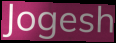
Jogesh